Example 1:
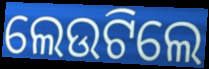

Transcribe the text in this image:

ଲେଉଟିଲେ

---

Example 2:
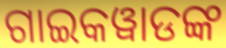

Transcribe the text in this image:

ଗାଇକୱାଡଙ୍କ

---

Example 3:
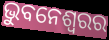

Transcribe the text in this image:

ଭୁବନେଶ୍ଵରର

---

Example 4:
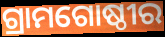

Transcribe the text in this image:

ଗ୍ରାମଗୋଷ୍ଠୀର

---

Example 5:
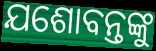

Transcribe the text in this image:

ଯଶୋବନ୍ତଙ୍କୁ